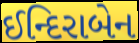
ઈન્દિરાબેન